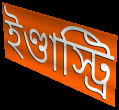
ইণ্ডাস্ট্রি